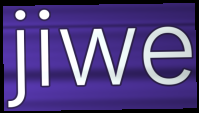
jiwe